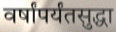
वर्षांपर्यंतसुद्धा